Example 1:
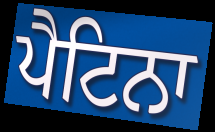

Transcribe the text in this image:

ਪੈਟਿਨਾ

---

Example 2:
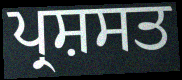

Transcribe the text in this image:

ਪ੍ਰਸ਼ਸਤ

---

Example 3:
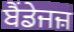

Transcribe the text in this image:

ਬੈਂਡੇਜਜ਼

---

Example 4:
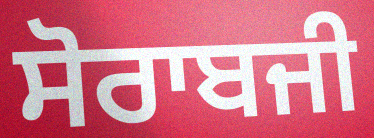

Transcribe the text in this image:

ਸੋਰਾਬਜੀ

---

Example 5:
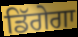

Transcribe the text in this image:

ਡਿੱਗੇਗਾ